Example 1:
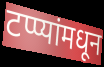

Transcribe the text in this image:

टप्प्यांमधून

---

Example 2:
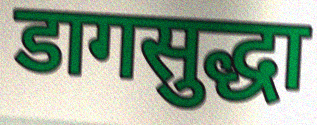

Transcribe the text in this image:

डागसुद्धा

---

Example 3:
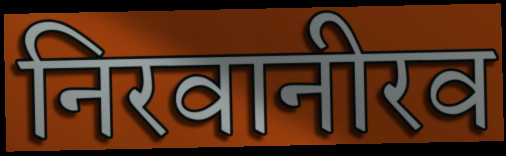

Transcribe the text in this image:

निरवानीरव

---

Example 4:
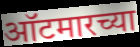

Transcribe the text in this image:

ऑटमारच्या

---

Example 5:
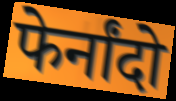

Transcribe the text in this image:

फेर्नांदो